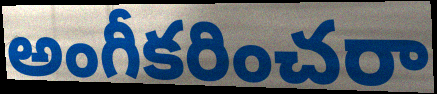
అంగీకరించరా